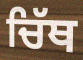
ਚਿੱਥ